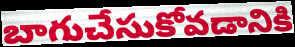
బాగుచేసుకోవడానికి